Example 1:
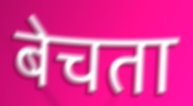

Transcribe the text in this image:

बेचता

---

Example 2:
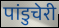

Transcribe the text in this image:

पांडुचेरी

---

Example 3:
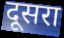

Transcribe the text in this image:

दूसरा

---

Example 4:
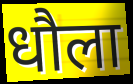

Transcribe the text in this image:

धौला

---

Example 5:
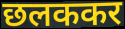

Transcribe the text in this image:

छलककर